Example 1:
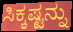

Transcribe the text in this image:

ಸಿಕ್ಕಷ್ಟನ್ನು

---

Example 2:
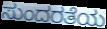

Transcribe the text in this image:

ಸುಂದರತೆಯ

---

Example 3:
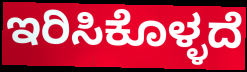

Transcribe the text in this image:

ಇರಿಸಿಕೊಳ್ಳದೆ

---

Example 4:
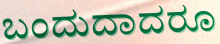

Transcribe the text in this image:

ಬಂದುದಾದರೂ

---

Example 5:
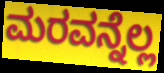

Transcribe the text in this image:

ಮರವನ್ನೆಲ್ಲ